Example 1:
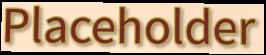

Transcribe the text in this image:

Placeholder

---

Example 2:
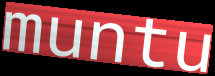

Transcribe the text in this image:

muntu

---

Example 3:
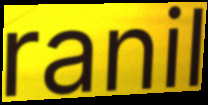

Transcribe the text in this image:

ranil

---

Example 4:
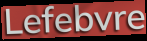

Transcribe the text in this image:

Lefebvre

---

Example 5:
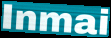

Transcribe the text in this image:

Inmai